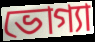
ভোগ্যা